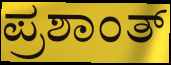
ಪ್ರಶಾಂತ್